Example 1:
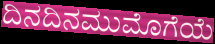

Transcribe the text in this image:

ದಿನದಿನಮುಮೊಗೆಯೆ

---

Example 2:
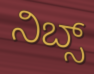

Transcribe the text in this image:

ನಿಬ್ಸ್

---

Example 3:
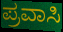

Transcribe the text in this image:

ಪ್ರವಾಸಿ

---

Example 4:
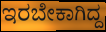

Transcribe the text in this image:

ಇರಬೇಕಾಗಿದ್ದ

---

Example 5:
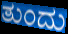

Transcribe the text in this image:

ತುಂದು